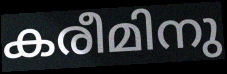
കരീമിനു